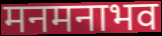
मनमनाभव